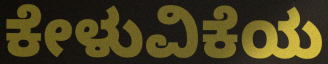
ಕೇಳುವಿಕೆಯ